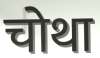
चोथा